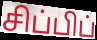
சிப்பிப்